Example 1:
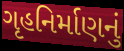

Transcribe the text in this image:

ગૃહનિર્માણનું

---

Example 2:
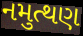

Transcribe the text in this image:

નમુત્થણ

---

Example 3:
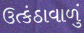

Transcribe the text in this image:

ઉત્કંઠાવાળું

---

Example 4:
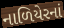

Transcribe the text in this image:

નાળિયેરનાં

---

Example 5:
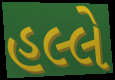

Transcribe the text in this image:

હલ્લે